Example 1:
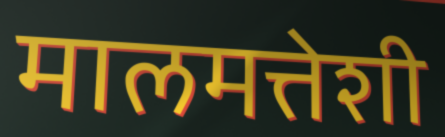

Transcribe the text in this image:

मालमत्तेशी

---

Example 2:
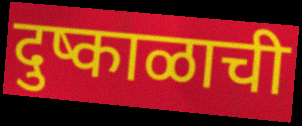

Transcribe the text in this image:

दुष्काळाची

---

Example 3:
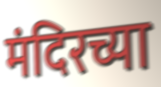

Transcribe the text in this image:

मंदिरच्या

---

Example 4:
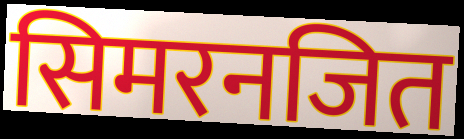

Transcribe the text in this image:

सिमरनजित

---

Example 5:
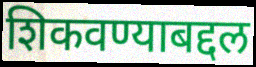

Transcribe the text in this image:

शिकवण्याबद्दल